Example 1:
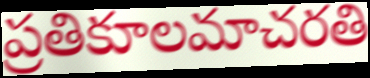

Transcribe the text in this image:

ప్రతికూలమాచరతి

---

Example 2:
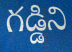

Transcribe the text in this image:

గడ్డిని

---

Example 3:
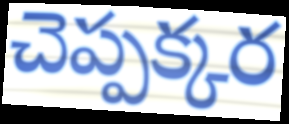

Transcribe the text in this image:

చెప్పక్కర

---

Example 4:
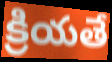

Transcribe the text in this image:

క్రియతే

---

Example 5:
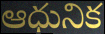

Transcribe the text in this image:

ఆధునిక